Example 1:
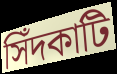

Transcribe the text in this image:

সিঁদকাটি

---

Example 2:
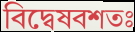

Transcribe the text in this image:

বিদ্বেষবশতঃ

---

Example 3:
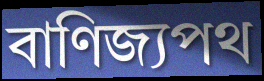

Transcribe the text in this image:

বাণিজ্যপথ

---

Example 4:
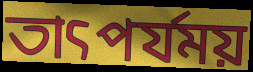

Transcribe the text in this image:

তাৎপর্যময়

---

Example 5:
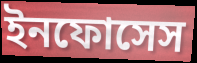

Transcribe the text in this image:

ইনফোসেস